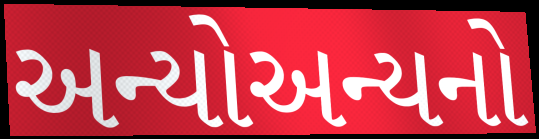
અન્યોઅન્યનો